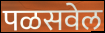
पळसवेल